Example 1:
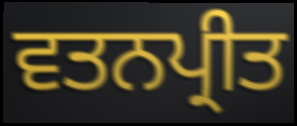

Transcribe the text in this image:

ਵਤਨਪ੍ਰੀਤ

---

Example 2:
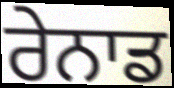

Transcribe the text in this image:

ਰੇਨਾਡ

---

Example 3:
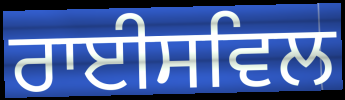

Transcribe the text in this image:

ਰਾਈਸਵਿਲ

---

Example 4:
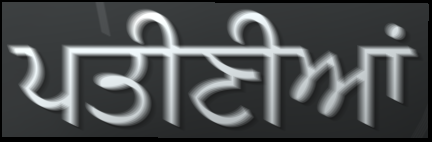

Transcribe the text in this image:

ਪਤੀਣੀਆਂ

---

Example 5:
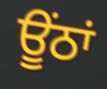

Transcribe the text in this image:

ਊਂਠਾਂ